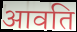
आवति